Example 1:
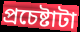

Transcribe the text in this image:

প্রচেষ্টাটা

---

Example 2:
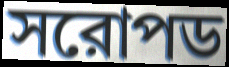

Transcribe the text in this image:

সরোপড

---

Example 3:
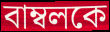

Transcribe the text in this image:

বাম্বলকে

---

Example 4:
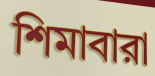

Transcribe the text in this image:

শিমাবারা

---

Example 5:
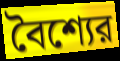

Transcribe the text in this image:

বৈশ্যের